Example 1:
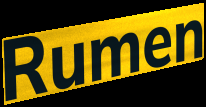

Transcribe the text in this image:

Rumen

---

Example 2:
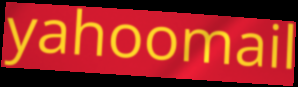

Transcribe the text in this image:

yahoomail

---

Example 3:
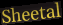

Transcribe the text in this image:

Sheetal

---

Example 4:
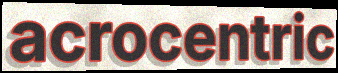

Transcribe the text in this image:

acrocentric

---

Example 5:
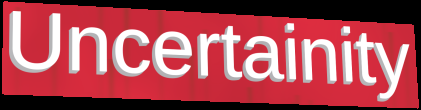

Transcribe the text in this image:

Uncertainity